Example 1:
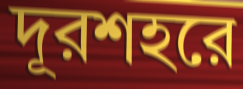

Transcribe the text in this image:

দূরশহরে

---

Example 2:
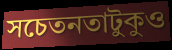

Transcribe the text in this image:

সচেতনতাটুকুও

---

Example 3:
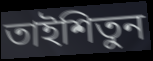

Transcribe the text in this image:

তাইশিতুন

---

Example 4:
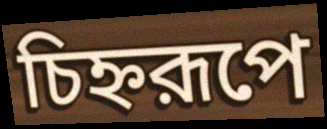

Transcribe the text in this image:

চিহ্নরূপে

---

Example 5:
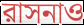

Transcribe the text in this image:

রাসনাও